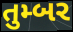
તુમ્બર